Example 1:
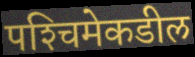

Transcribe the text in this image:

पश्चिमेकडील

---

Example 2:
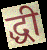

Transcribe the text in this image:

द्धी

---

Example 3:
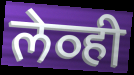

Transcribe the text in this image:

लेव्ही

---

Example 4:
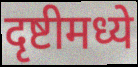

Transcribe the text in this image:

दृष्टीमध्ये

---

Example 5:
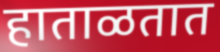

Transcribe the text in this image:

हाताळतात